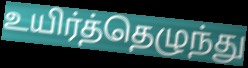
உயிர்த்தெழுந்து